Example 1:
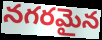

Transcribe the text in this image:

నగరమైన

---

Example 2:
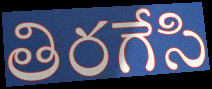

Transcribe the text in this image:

తిరగేసి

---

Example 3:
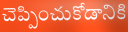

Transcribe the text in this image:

చెప్పించుకోడానికి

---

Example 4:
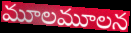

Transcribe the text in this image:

మూలమూలన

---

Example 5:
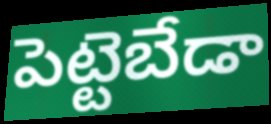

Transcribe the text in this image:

పెట్టెబేడా